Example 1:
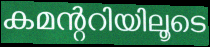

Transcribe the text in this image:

കമന്ററിയിലൂടെ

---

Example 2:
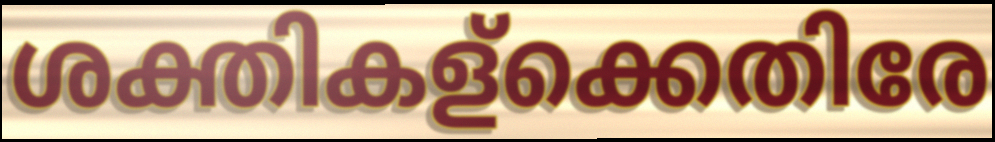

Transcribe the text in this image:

ശക്തികള്ക്കെതിരേ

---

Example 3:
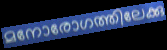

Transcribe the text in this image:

മനോരോഗത്തിലേക്കു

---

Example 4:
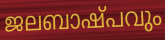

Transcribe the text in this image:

ജലബാഷ്പവും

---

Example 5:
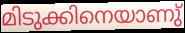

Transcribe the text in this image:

മിടുക്കിനെയാണു്